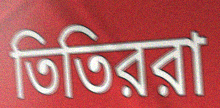
তিতিররা